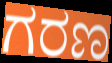
ಗರಣ